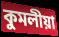
কুমলীয়া